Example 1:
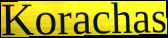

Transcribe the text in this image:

Korachas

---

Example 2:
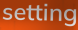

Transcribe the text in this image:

setting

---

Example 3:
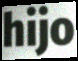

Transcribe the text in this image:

hijo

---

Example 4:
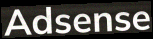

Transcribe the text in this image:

Adsense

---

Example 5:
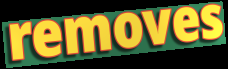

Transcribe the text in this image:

removes